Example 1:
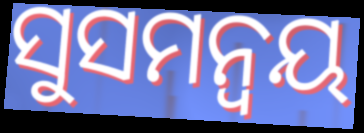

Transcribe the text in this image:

ସୁସମନ୍ଵୟ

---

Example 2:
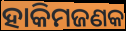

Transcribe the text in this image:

ହାକିମଜଣକ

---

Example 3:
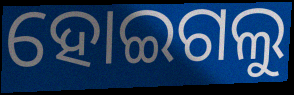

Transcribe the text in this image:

ହୋଇଗଲୁ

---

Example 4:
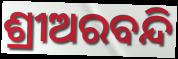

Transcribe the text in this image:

ଶ୍ରୀଅରବନ୍ଦି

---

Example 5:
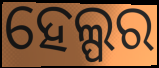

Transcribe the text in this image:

ହେଲ୍ପର